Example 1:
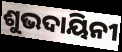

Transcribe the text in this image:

ଶୁଭଦାୟିନୀ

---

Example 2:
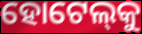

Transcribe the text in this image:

ହୋଟେଲ୍‌କୁ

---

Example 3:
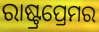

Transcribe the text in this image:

ରାଷ୍ଟ୍ରପ୍ରେମର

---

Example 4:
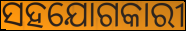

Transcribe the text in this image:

ସହଯୋଗକାରୀ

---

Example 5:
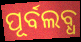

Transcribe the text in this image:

ପୂର୍ବଲବ୍ଧ